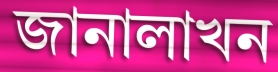
জানালাখন